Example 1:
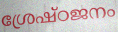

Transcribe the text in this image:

ശ്രേഷ്ഠജനം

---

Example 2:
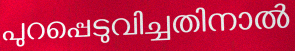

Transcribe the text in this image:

പുറപ്പെടുവിച്ചതിനാൽ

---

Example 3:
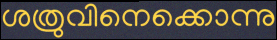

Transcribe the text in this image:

ശത്രുവിനെക്കൊന്നു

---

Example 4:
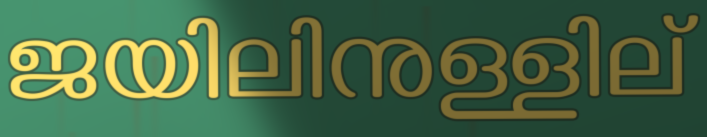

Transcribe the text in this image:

ജയിലിനുള്ളില്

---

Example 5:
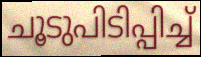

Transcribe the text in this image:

ചൂടുപിടിപ്പിച്ച്